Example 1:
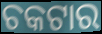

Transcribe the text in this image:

ଚକଟାର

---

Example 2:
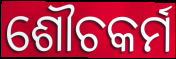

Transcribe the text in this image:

ଶୌଚକର୍ମ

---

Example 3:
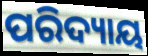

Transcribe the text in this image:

ପରିଦ୍ୟାୟ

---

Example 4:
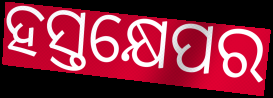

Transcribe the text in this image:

ହସ୍ତକ୍ଷେପର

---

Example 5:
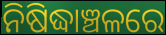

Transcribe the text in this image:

ନିଷିଦ୍ଧାଞ୍ଚଳରେ